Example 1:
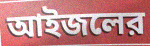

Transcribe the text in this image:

আইজলের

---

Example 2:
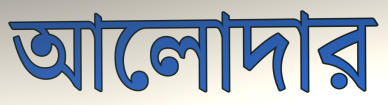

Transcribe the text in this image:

আলোদার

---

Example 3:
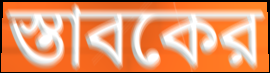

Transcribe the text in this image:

স্তাবকের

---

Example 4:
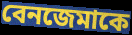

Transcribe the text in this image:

বেনজেমাকে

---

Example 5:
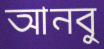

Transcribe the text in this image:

আনবু